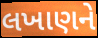
લખાણને